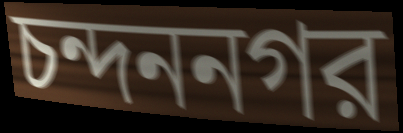
চন্দননগর